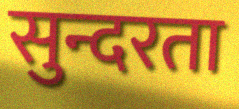
सुन्दरता